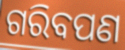
ଗରିବପଣ